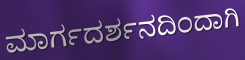
ಮಾರ್ಗದರ್ಶನದಿಂದಾಗಿ